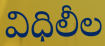
విధిలీల